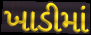
ખાડીમાં